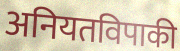
अनियतविपाकी